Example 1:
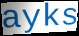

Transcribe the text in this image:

ayks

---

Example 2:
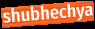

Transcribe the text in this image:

shubhechya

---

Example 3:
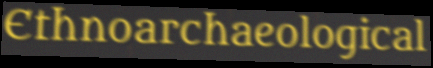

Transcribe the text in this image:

Ethnoarchaeological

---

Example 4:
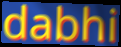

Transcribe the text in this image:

dabhi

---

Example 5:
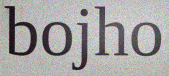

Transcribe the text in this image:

bojho